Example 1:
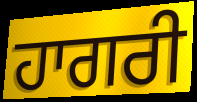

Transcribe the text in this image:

ਹਾਗਰੀ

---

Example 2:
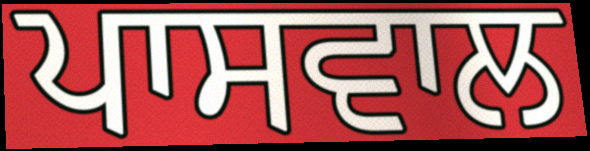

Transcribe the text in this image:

ਪਾਸਵਾਲ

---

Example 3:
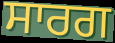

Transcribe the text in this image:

ਸਾਰਗ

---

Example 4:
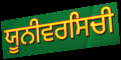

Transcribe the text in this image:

ਯੂਨੀਵਰਸਿਚੀ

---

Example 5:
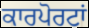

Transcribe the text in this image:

ਕਾਰਪੋਰਟਾਂ